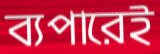
ব্যপারেই